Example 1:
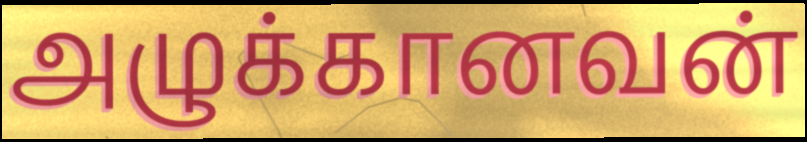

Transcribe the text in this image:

அழுக்கானவன்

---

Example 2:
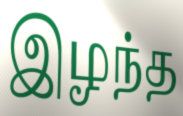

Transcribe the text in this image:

இழந்த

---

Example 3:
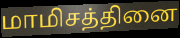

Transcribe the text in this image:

மாமிசத்தினை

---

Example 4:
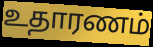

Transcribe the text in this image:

உதாரணம்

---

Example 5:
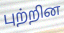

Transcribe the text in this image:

புற்றின